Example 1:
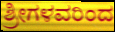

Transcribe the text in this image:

ಶ್ರೀಗಳವರಿಂದ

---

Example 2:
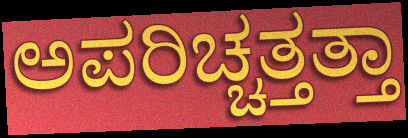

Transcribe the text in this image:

ಅಪರಿಚ್ಚತ್ತತ್ತಾ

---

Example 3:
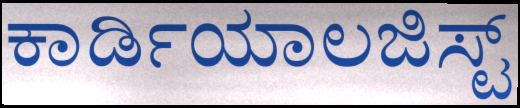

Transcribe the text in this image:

ಕಾರ್ಡಿಯಾಲಜಿಸ್ಟ್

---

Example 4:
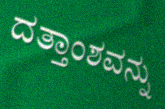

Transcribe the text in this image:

ದತ್ತಾಂಶವನ್ನು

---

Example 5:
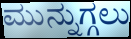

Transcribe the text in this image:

ಮುನ್ನುಗ್ಗಲು